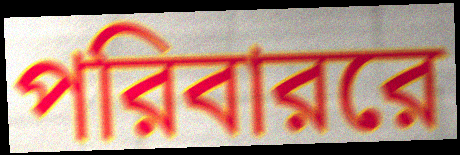
পরিবাররে